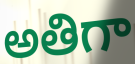
అతిగా